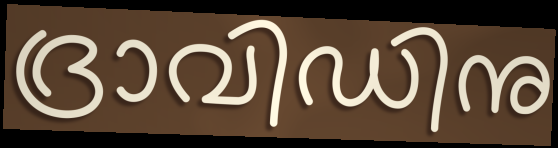
ദ്രാവിഡിനു